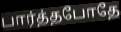
பார்த்தபோதே